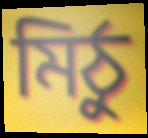
মিঠু